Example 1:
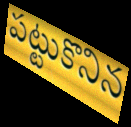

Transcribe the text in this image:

పట్టుకొనిన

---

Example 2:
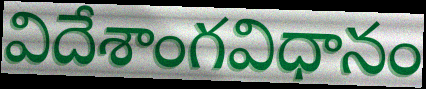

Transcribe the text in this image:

విదేశాంగవిధానం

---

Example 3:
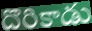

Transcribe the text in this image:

దొరికాడు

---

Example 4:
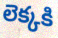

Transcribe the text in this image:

లెక్కకి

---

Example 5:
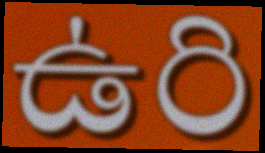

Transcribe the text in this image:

ఉరి